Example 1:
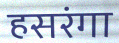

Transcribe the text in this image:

हसरंगा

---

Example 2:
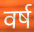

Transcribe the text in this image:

वर्ष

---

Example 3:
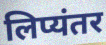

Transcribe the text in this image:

लिप्यंतर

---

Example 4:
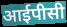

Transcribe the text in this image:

आईपीसी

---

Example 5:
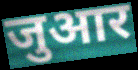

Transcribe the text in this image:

जुआर